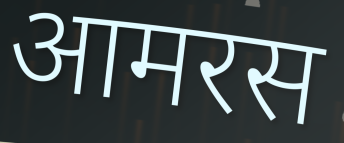
आमरस